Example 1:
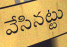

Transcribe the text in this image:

వేసినట్టు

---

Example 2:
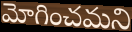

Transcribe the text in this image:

మోగించమని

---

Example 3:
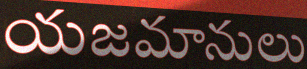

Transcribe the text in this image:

యజమానులు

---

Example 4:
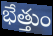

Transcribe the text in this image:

భేత్తుం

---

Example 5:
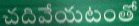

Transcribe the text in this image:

చదివేయటంతో